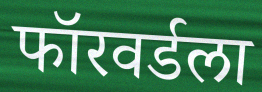
फॉरवर्डला